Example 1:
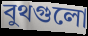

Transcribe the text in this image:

বুথগুলো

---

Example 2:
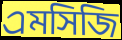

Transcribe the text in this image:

এমসিজি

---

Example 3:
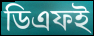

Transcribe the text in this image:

ডিএফই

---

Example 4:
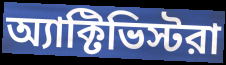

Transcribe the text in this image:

অ্যাক্টিভিস্টরা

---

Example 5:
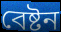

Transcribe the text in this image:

বেষ্টন